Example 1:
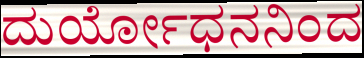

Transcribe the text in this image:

ದುರ್ಯೋಧನನಿಂದ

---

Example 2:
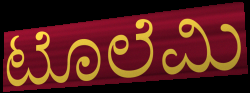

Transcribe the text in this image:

ಟೊಲೆಮಿ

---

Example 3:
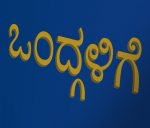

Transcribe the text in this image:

ಒಂದ್ಗಳಿಗೆ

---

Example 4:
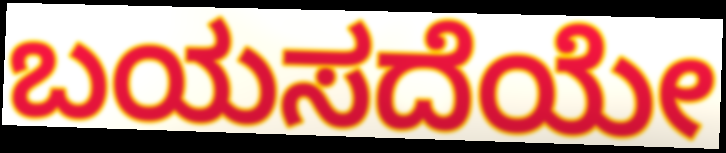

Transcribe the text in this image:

ಬಯಸದೆಯೇ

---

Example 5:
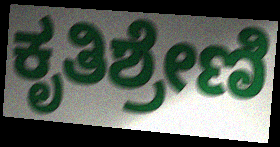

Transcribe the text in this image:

ಕೃತಿಶ್ರೇಣಿ